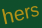
hers